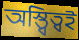
অস্ত্বিত্বই